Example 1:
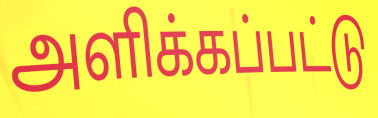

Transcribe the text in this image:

அளிக்கப்பட்டு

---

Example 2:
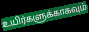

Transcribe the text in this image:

உயிர்களுக்காகவும்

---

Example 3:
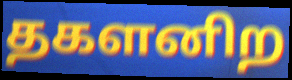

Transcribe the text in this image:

தகளனிற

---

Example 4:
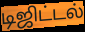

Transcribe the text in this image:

டிஜிட்டல்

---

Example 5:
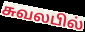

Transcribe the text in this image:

சுவலபில்